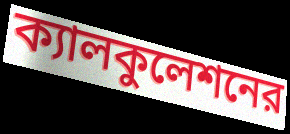
ক্যালকুলেশনের